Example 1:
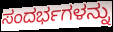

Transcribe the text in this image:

ಸಂದರ್ಭಗಳನ್ನು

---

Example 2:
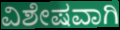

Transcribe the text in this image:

ವಿಶೇಷವಾಗಿ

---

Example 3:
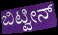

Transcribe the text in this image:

ಬಿಟ್ವೀನ್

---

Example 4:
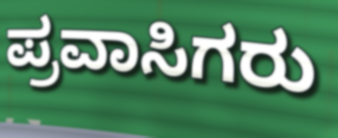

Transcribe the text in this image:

ಪ್ರವಾಸಿಗರು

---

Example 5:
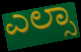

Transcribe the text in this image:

ಎಲ್ಸಾ